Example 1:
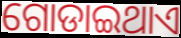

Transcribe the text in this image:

ଗୋଡାଇଥାଏ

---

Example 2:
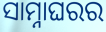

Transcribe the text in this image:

ସାମ୍ନାଘରର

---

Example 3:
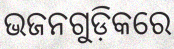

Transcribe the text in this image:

ଭଜନଗୁଡ଼ିକରେ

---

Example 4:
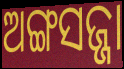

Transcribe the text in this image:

ଅଙ୍ଗସଜ୍ଜା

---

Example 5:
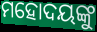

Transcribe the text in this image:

ମହୋଦୟଙ୍କୁ